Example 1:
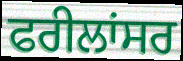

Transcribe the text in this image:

ਫਰੀਲਾਂਸਰ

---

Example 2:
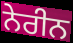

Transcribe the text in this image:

ਨੇਰੀਨ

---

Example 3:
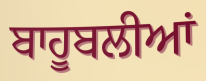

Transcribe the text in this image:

ਬਾਹੂਬਲੀਆਂ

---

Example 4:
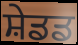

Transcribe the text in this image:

ਸ਼ੇਡਡ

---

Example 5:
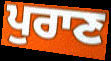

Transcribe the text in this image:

ਪੁਰਾਣ